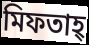
মিফতাহ্